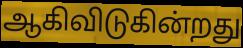
ஆகிவிடுகின்றது